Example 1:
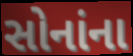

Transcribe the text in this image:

સોનાંના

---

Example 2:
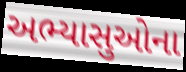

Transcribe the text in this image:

અભ્યાસુઓના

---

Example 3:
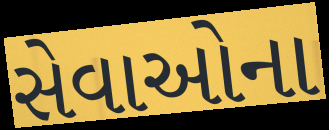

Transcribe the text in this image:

સેવાઓના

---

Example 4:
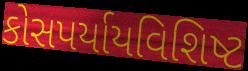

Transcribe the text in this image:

કોસપર્યાયવિશિષ્ટ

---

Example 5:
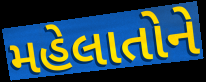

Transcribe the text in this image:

મહેલાતોને